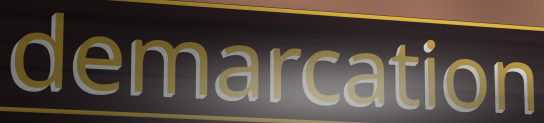
demarcation